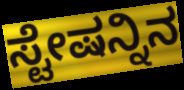
ಸ್ಟೇಷನ್ನಿನ